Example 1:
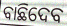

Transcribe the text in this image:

ବାଛିଦେବ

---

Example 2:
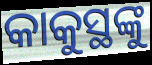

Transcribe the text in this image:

କାକୁସ୍ଥଙ୍କୁ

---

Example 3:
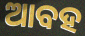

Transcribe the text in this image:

ଆବହ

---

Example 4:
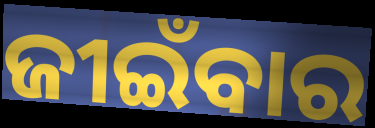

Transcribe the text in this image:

ଜୀଇଁବାର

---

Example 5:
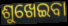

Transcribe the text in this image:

ଶୁଖେଇବା